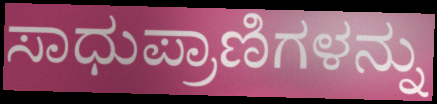
ಸಾಧುಪ್ರಾಣಿಗಳನ್ನು